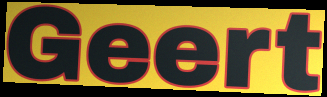
Geert